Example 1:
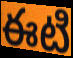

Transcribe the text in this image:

ఈటి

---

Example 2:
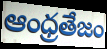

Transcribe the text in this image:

ఆంధ్రతేజం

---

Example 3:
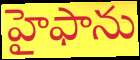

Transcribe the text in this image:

హైఫాను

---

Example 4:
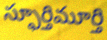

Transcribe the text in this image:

స్ఫూర్తిమూర్తి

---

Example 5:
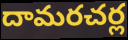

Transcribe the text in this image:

దామరచర్ల